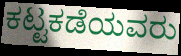
ಕಟ್ಟಕಡೆಯವರು